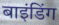
बाइंडिंग